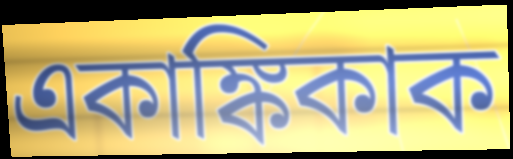
একাঙ্কিকাক